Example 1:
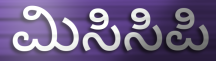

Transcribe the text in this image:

ಮಿಸಿಸಿಪಿ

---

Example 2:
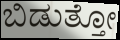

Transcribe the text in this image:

ಬಿಡುತ್ತೋ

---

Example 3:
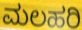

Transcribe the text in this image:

ಮಲಹರಿ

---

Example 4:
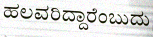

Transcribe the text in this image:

ಹಲವರಿದ್ದಾರೆಂಬುದು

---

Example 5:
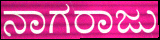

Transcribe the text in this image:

ನಾಗರಾಜು